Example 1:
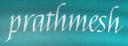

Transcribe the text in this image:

prathmesh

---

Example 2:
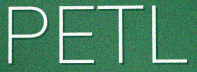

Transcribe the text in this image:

PETL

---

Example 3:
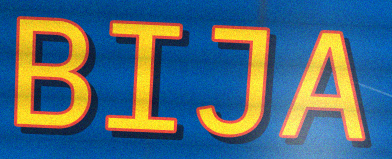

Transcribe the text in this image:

BIJA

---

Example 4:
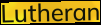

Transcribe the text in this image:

Lutheran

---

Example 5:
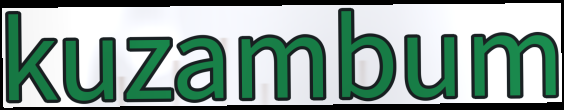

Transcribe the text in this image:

kuzambum